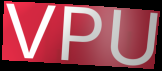
VPU